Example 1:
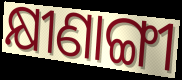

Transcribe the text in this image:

କ୍ଷୀଣାଙ୍ଗୀ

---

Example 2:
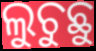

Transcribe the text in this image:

ଲୁଚୁଛୁ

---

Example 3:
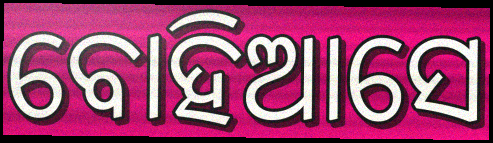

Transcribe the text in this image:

ବୋହିଆସେ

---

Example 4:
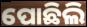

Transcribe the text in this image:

ପୋଛିଲି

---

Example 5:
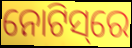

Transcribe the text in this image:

ନୋଟିସ୍‌ରେ